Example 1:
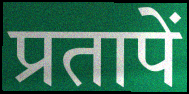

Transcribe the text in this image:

प्रतापें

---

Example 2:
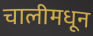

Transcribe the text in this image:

चालीमधून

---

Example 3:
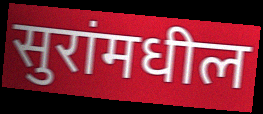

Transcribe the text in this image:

सुरांमधील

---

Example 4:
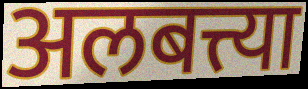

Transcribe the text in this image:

अलबत्त्या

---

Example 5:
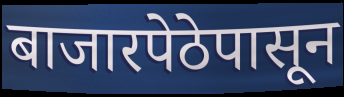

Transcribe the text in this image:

बाजारपेठेपासून